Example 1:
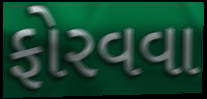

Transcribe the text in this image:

ફોરવવા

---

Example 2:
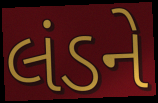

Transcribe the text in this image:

લંડને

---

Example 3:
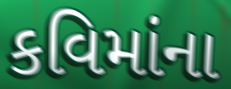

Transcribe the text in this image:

કવિમાંના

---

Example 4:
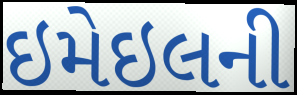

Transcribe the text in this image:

ઇમેઇલની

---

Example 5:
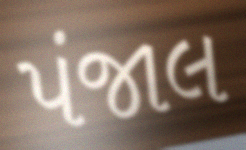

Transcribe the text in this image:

પંજાલ